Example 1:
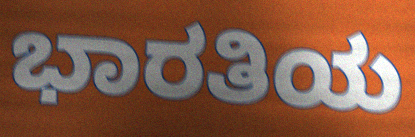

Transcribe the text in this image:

ಭಾರತಿಯ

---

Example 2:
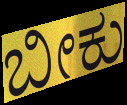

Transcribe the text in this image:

ಬೀಕು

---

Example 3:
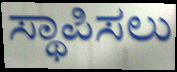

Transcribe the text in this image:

ಸ್ಥಾಪಿಸಲು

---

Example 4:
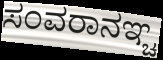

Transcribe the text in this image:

ಸಂವರಾನಞ್ಚ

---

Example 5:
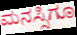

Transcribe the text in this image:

ಮನಸ್ಸಿಗೂ